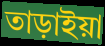
তাড়াইয়া